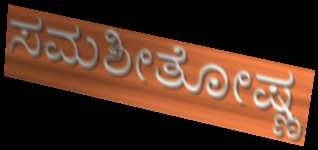
ಸಮಶೀತೋಷ್ಣ